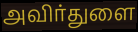
அவிர்துளை